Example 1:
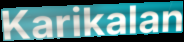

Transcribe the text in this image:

Karikalan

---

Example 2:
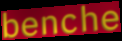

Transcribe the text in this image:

benche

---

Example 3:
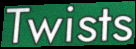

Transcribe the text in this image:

Twists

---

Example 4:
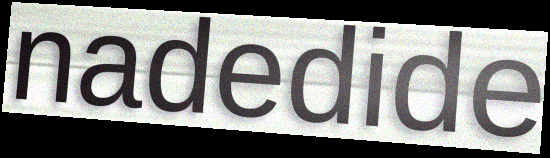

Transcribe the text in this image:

nadedide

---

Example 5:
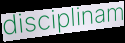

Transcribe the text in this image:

disciplinam